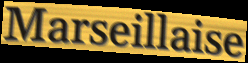
Marseillaise